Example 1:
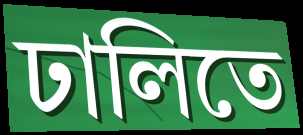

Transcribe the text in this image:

ঢালিতে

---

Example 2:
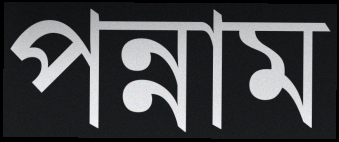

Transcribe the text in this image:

পন্নাম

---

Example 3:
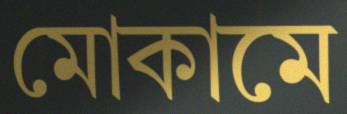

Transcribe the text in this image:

মোকামে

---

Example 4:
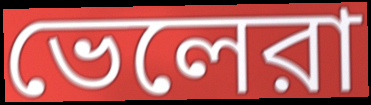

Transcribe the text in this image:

ভেলেরা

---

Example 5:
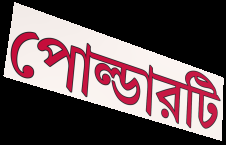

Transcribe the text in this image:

পোল্ডারটি